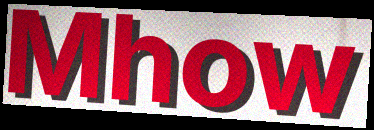
Mhow